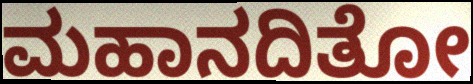
ಮಹಾನದಿತೋ